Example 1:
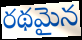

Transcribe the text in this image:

రథమైన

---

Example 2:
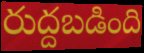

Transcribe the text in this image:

రుద్దబడింది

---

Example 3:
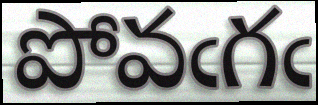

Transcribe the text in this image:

పోవఁగఁ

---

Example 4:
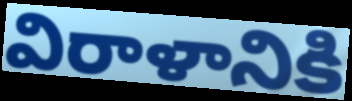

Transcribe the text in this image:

విరాళానికి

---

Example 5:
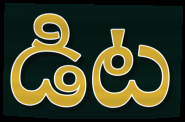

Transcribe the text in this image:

డిట